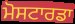
ਮੋਸਟਾਰਡਾ